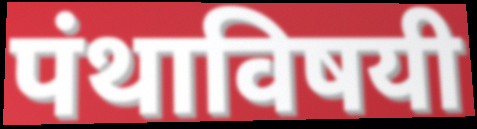
पंथाविषयी